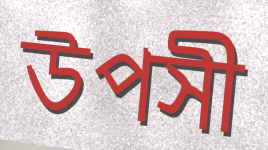
উপসী